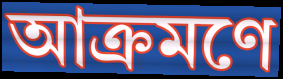
আক্ৰমণে